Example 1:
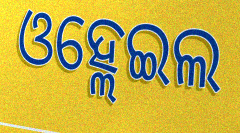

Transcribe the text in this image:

ଓହ୍ଲେଇଲ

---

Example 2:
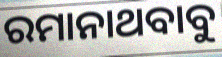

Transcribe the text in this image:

ରମାନାଥବାବୁ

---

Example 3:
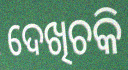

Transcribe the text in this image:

ଦେଖିଚକି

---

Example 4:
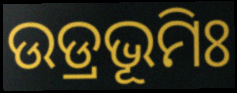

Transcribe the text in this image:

ଉଡ୍ରଭୂମିଃ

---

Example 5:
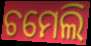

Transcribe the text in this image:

ଚମେଲି